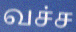
வச்ச